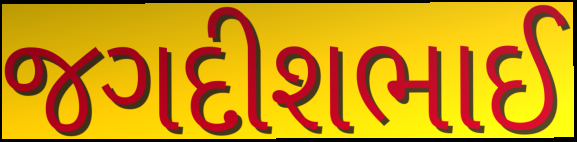
જગદીશભાઈ